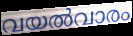
വയൽവാരം